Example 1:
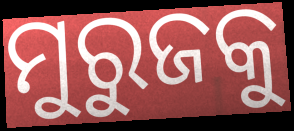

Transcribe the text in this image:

ମୁରୁଜକୁ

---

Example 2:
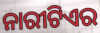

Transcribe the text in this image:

ନାରୀଟିଏର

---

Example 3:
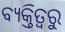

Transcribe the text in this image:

ବ୍ୟକ୍ତିତ୍ଵରୁ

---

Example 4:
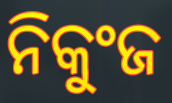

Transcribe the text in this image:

ନିକୁଂଜ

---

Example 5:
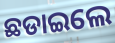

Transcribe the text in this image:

ଛଡାଇଲେ